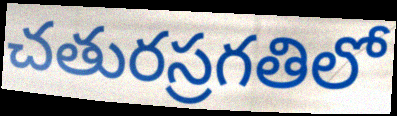
చతురస్రగతిలో